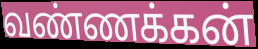
வண்ணக்கன்